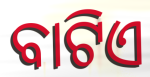
ବାଟିଏ